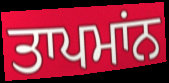
ਤਾਪਮਾਂਨ